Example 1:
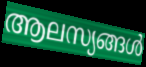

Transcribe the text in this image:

ആലസ്യങ്ങൾ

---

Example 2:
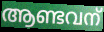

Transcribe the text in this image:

ആണ്ടവന്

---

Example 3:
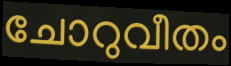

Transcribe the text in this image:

ചോറുവീതം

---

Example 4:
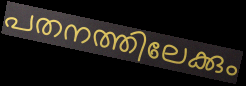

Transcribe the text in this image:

പതനത്തിലേക്കും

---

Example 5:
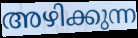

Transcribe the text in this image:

അഴിക്കുന്ന